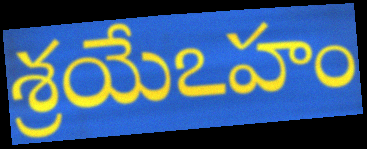
శ్రయేఽహం